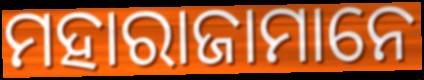
ମହାରାଜାମାନେ